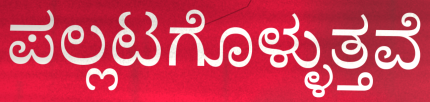
ಪಲ್ಲಟಗೊಳ್ಳುತ್ತವೆ